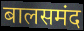
बालसमंद